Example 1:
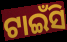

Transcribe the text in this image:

ଟାଇଁସି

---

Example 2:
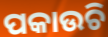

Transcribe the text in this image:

ପକାଉଚି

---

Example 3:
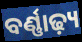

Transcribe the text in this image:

ବର୍ଣ୍ଣାଢ଼୍ୟ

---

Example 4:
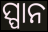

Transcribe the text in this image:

ସ୍ପାନ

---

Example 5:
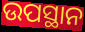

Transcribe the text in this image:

ଉପସ୍ଥାନ